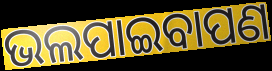
ଭଲପାଇବାପଣ